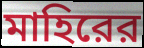
মাহিরের